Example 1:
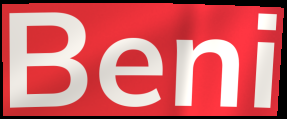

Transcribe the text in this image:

Beni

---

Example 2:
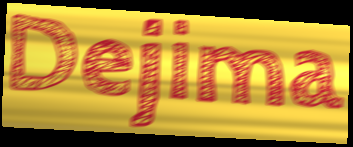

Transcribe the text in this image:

Dejima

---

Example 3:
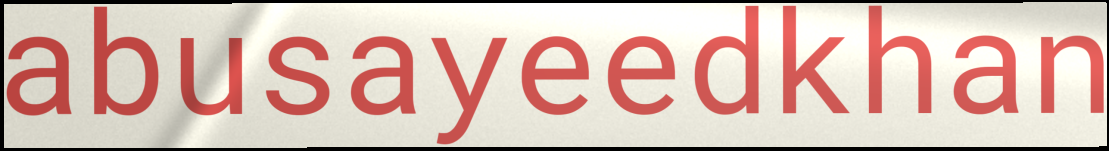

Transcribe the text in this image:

abusayeedkhan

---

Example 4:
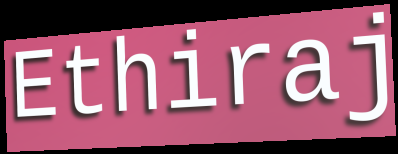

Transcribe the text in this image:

Ethiraj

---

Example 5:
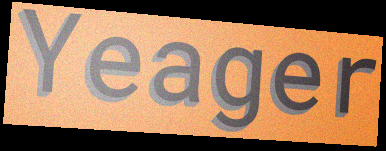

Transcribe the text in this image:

Yeager